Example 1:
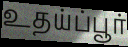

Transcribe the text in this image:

உதய்ப்பூர்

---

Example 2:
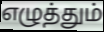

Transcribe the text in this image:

எழுத்தும்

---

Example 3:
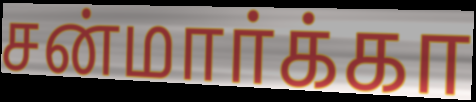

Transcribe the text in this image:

சன்மார்க்கா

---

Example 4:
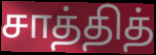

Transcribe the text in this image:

சாத்தித்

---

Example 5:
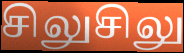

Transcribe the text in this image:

சிலுசிலு